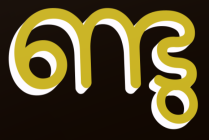
ണ്ടു